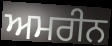
ਅਮਰੀਨ